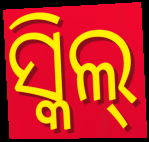
ସ୍କିଲ୍